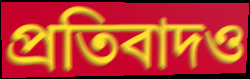
প্রতিবাদও